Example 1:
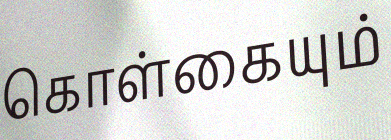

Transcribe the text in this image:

கொள்கையும்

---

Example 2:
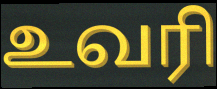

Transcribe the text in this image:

உவரி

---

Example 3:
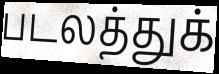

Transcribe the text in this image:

படலத்துக்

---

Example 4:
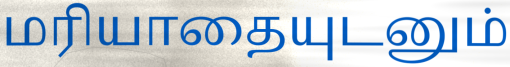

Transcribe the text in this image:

மரியாதையுடனும்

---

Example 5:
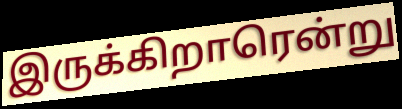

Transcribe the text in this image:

இருக்கிறாரென்று